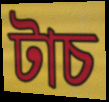
টাচ